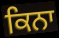
ਕਿਨਾ